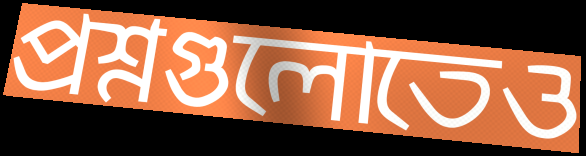
প্রশ্নগুলোতেও